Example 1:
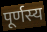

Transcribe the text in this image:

पूर्णस्य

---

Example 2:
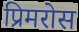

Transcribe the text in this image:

प्रिमरोस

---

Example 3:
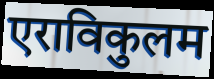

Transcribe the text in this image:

एराविकुलम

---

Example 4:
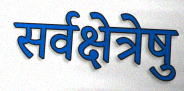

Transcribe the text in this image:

सर्वक्षेत्रेषु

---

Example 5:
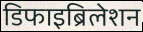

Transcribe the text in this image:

डिफाइब्रिलेशन